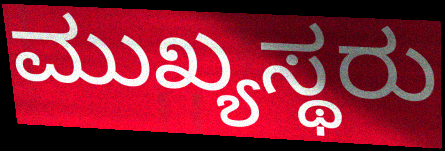
ಮುಖ್ಯಸ್ಥರು